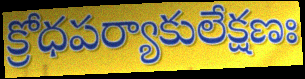
క్రోధపర్యాకులేక్షణః